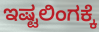
ಇಷ್ಟಲಿಂಗಕ್ಕೆ